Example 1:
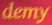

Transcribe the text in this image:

demy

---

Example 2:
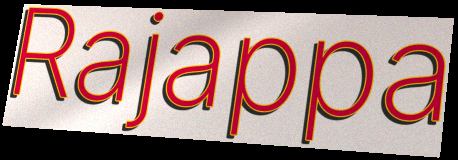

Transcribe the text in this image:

Rajappa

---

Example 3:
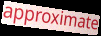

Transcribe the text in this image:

approximate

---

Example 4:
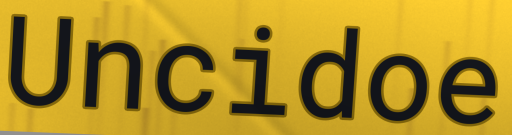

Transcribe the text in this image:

Uncidoe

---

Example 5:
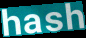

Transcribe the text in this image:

hash